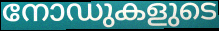
നോഡുകളുടെ